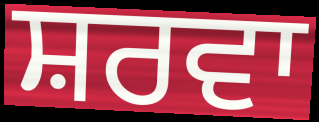
ਸ਼ਰਵਾ